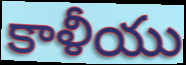
కాళీయు